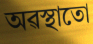
অৱস্থাতো